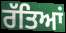
ਰੱਤਿਆਂ